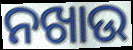
ନଖାଉ